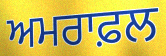
ਅਮਰਾਫ਼ਲ